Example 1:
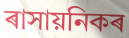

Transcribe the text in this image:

ৰাসায়নিকৰ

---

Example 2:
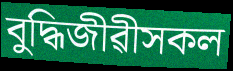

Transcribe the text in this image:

বুদ্ধিজীৱীসকল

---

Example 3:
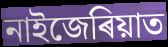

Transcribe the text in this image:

নাইজেৰিয়াত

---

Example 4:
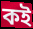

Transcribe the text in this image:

কই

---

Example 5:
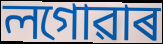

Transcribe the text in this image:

লগোৱাৰ